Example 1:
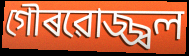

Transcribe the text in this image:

গৌৰৱোজ্জ্বল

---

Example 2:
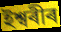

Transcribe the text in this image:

ইশ্বৰীৰ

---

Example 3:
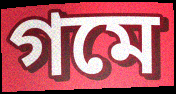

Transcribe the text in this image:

গমে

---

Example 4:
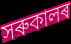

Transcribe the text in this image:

সৰুকালৰ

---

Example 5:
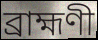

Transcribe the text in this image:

ব্ৰাহ্মণী